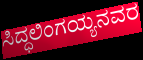
ಸಿದ್ಧಲಿಂಗಯ್ಯನವರ